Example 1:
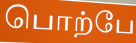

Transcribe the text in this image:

பொற்பே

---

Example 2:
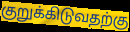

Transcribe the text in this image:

குறுக்கிடுவதற்கு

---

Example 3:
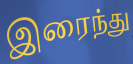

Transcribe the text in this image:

இரைந்து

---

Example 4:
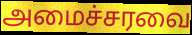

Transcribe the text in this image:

அமைச்சரவை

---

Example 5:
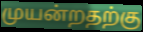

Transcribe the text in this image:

முயன்றதற்கு